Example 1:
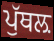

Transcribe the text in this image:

ਪੁੱਥਲ਼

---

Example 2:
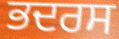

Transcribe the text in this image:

ਭਦਰਸ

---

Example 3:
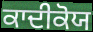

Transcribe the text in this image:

ਕਾਦੀਕੋਯ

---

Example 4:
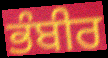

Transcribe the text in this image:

ਭੰਬੀਰ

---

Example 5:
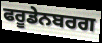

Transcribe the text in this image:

ਫਰੂਡੇਨਬਰਗ